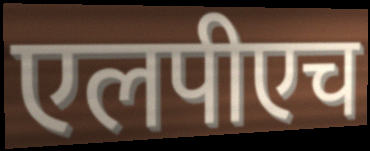
एलपीएच